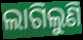
ଲାଗିଲୁଣି